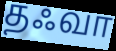
தஃவா